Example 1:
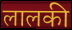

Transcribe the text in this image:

लालकी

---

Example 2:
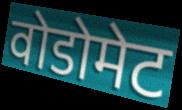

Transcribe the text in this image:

वोडोमेट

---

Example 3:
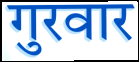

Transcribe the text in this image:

गुरवार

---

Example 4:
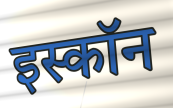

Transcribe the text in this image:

इस्कॉन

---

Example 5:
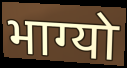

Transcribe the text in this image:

भाग्यो